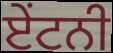
ਏਂਟਨੀ